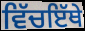
ਵਿੱਚਇੱਥੇ